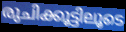
രുചിക്കൂട്ടിലൂടെ